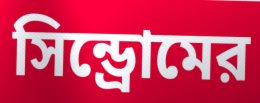
সিন্ড্রোমের